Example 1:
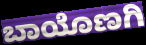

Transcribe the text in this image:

ಬಾಯೊಣಗಿ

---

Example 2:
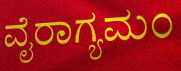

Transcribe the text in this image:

ವೈರಾಗ್ಯಮಂ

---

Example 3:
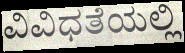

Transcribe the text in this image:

ವಿವಿಧತೆಯಲ್ಲಿ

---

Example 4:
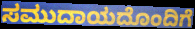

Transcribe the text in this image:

ಸಮುದಾಯದೊಂದಿಗೆ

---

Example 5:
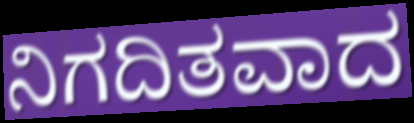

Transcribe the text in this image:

ನಿಗದಿತವಾದ